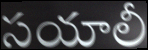
సయాలీ